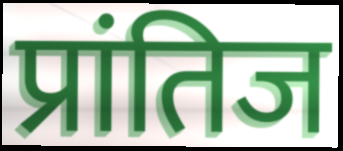
प्रांतिज